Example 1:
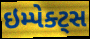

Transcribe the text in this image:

ઇમ્પેક્ટ્સ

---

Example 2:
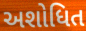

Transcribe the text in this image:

અશોધિત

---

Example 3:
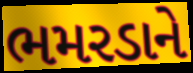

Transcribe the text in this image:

ભમરડાને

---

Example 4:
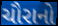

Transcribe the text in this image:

ચૌરાનો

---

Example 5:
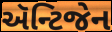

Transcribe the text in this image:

ઍન્ટિજેન